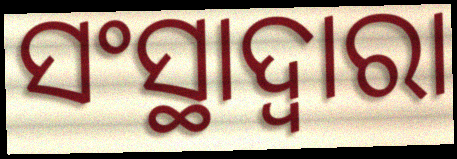
ସଂସ୍ଥାଦ୍ଵାରା